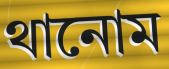
থানোম